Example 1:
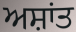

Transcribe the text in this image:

ਅਸ਼ਾਂਤ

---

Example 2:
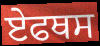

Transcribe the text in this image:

ਏਫਥਸ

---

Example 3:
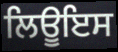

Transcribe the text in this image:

ਲਿਊਇਸ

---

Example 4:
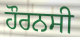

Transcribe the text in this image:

ਹੌਰਨਸੀ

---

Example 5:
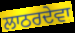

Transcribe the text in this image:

ਲਾਠਰਦੇਵਾ